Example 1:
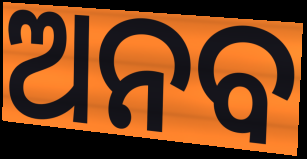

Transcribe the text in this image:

ଅନବ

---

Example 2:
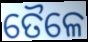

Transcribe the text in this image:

ତୈଳେ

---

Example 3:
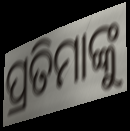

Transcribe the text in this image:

ପ୍ରତିମାଙ୍କୁ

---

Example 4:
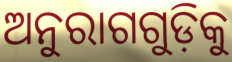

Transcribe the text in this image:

ଅନୁରାଗଗୁଡ଼ିକୁ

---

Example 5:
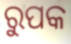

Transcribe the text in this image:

ରୁପକ